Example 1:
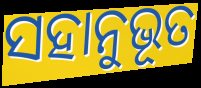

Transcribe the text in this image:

ସହାନୁଭୂତ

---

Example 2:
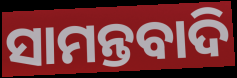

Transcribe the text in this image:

ସାମନ୍ତବାଦି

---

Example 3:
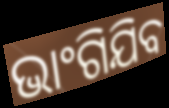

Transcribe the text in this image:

ଭାଂଗିଯିବ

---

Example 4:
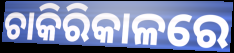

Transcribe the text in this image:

ଚାକିରିକାଳରେ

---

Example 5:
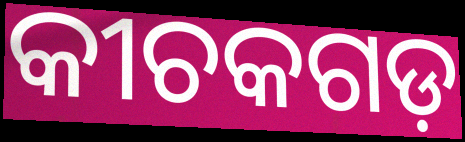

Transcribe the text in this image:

କୀଚକଗଡ଼